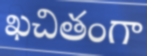
ఖచితంగా